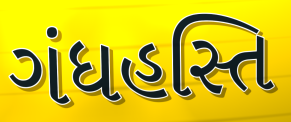
ગંધહસ્તિ